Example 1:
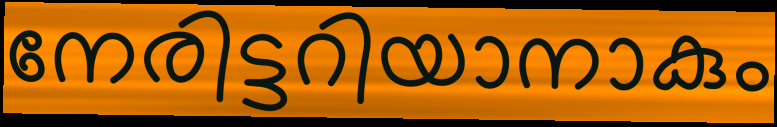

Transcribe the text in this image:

നേരിട്ടറിയാനാകും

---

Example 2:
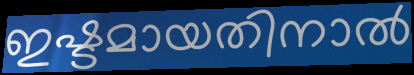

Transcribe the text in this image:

ഇഷ്ടമായതിനാൽ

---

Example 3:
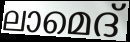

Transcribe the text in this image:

ലാമെദ്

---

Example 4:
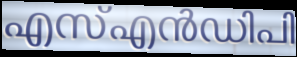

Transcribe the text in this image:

എസ്എൻഡിപി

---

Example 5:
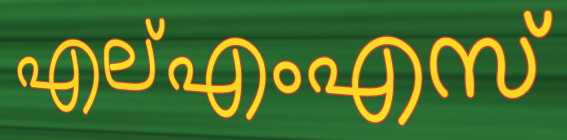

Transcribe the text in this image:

എല്എംഎസ്